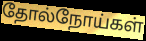
தோல்நோய்கள்